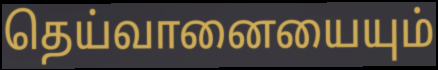
தெய்வானையையும்